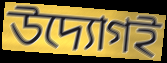
উদ্যোগই